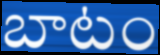
బాటం